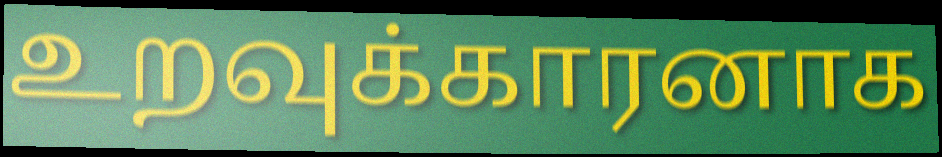
உறவுக்காரனாக